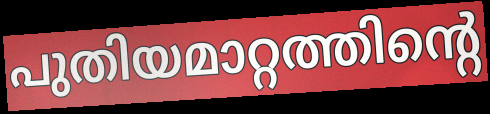
പുതിയമാറ്റത്തിന്റെ